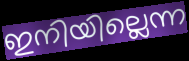
ഇനിയില്ലെന്ന